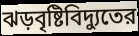
ঝড়বৃষ্টিবিদ্যুতের